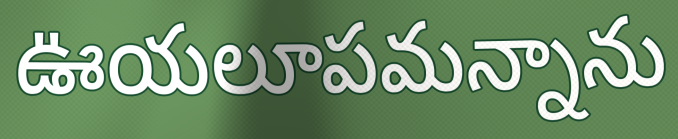
ఊయలూపమన్నాను